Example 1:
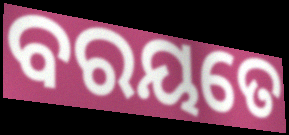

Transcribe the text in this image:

ବରୟତେ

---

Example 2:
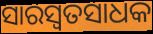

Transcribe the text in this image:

ସାରସ୍ଵତସାଧକ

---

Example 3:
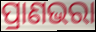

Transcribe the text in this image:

ପ୍ରାଣଭରା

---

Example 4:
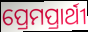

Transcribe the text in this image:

ପ୍ରେମପ୍ରାର୍ଥୀ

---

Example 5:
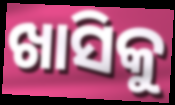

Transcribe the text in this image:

ଖାସିକୁ